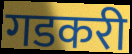
गडकरी